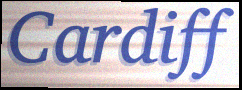
Cardiff